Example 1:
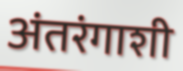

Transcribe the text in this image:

अंतरंगाशी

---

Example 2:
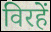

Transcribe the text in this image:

विरहें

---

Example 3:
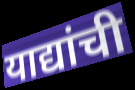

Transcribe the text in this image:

याद्यांची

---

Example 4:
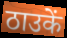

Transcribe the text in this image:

ठाउकें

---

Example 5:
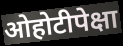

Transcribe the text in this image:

ओहोटीपेक्षा